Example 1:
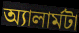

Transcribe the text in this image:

অ্যালার্মটা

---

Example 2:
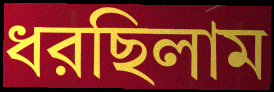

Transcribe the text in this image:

ধরছিলাম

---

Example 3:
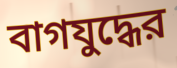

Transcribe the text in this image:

বাগযুদ্ধের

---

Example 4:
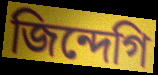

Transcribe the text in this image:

জিন্দেগি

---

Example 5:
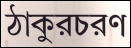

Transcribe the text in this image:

ঠাকুরচরণ